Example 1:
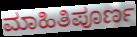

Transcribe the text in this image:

ಮಾಹಿತಿಪೂರ್ಣ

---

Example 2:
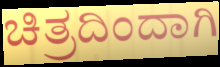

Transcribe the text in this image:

ಚಿತ್ರದಿಂದಾಗಿ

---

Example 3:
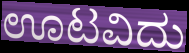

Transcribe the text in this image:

ಊಟವಿದು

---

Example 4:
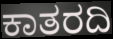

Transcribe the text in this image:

ಕಾತರದಿ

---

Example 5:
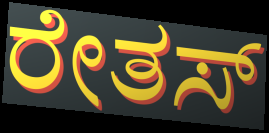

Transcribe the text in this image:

ರೇತಸ್